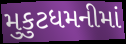
મુકુટધમનીમાં